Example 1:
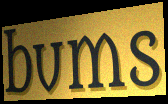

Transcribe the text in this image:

bums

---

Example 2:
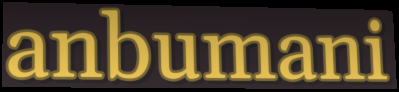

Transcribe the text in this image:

anbumani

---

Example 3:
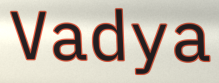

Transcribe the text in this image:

Vadya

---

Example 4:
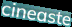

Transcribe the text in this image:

cineaste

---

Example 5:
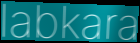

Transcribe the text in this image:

labkara